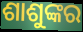
ଶାଶୁଙ୍କର